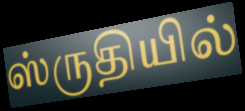
ஸ்ருதியில்